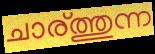
ചാര്ത്തുന്ന